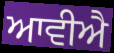
ਆਵੀਐ